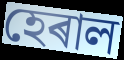
হেৰাল